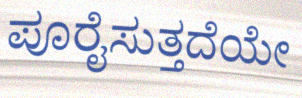
ಪೂರೈಸುತ್ತದೆಯೇ